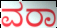
ವರಾ